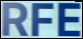
RFE